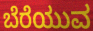
ಬೆರೆಯುವ